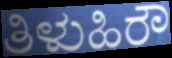
ತಿಳುಹಿರೌ